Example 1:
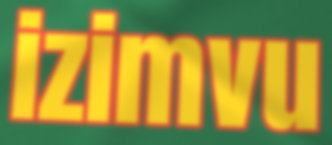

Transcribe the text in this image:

izimvu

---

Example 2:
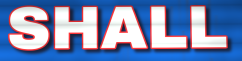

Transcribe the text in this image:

SHALL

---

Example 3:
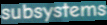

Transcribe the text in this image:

subsystems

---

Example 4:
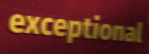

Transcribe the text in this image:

exceptional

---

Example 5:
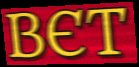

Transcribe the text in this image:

BET